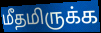
மீதமிருக்க